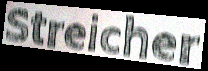
Streicher